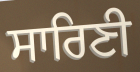
ਸਾਰਿਣੀ